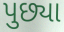
પુછ્યા